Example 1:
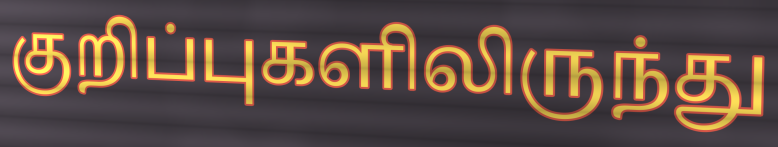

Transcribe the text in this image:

குறிப்புகளிலிருந்து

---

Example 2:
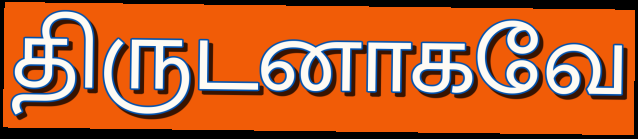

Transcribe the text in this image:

திருடனாகவே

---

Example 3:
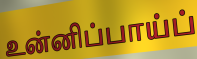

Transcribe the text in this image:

உன்னிப்பாய்ப்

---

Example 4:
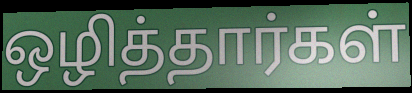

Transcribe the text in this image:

ஒழித்தார்கள்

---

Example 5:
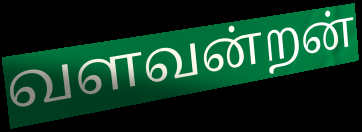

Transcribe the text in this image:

வளவன்றன்